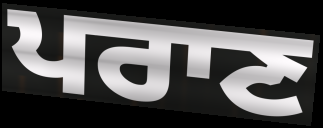
ਪਰਾਣ